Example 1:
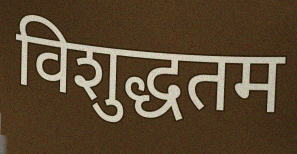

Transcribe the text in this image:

विशुद्धतम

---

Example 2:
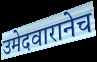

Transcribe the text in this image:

उमेदवारानेच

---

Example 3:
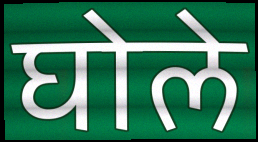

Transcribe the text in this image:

घोले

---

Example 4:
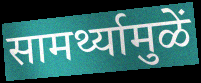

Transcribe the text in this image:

सामर्थ्यामुळें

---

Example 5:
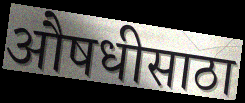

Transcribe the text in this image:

औषधीसाठा